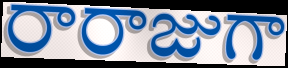
రారాజుగా